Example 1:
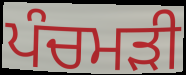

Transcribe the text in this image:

ਪੰਚਮੜੀ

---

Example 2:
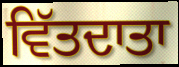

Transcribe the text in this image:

ਵਿੱਤਦਾਤਾ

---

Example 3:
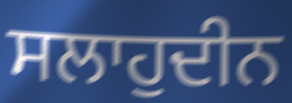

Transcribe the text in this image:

ਸਲਾਹੁਦੀਨ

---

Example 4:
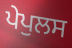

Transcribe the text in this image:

ਪੇਪੁਲਸ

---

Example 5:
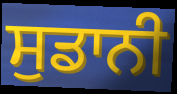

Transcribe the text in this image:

ਸੁਡਾਨੀ